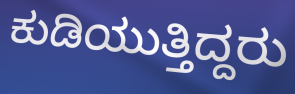
ಕುಡಿಯುತ್ತಿದ್ದರು